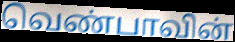
வெண்பாவின்